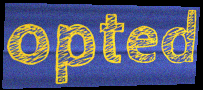
opted